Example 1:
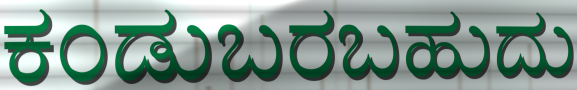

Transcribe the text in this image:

ಕಂಡುಬರಬಹುದು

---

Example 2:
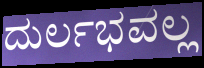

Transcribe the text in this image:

ದುರ್ಲಭವಲ್ಲ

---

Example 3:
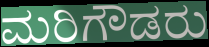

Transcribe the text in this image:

ಮರಿಗೌಡರು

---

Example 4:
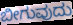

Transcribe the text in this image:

ಬೀಗುವುದು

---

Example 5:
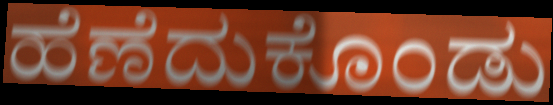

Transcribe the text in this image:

ಹೆಣೆದುಕೊಂಡು